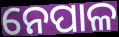
ନେପାଳ